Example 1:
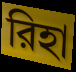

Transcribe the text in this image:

রিহা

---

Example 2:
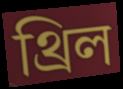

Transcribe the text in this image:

থ্রিল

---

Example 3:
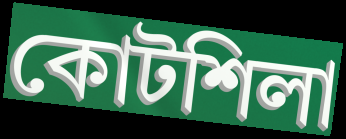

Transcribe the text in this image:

কোটশিলা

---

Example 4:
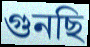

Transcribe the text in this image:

গুনছি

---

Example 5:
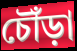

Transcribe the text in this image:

চৌঁড়া